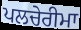
ਪਲਚੇਰੀਮਾ